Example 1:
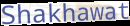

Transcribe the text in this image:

Shakhawat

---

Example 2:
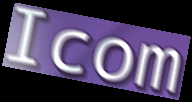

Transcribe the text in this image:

Icom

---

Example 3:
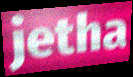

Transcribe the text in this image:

jetha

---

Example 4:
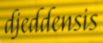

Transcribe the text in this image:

djeddensis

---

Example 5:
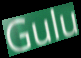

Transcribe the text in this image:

Gulu